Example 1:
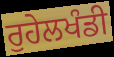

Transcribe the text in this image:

ਰੁਹੇਲਖੰਡੀ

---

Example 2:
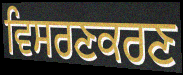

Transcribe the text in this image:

ਵਿਸਰਣਕਰਣ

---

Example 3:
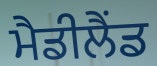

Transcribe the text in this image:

ਮੈਡੀਲੈਂਡ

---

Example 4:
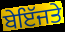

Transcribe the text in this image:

ਬੇਇੱਜਤੇ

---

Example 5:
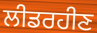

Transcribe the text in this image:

ਲੀਡਰਹੀਣ